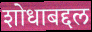
शोधाबद्दल